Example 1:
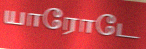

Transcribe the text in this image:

யாரோடே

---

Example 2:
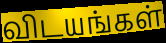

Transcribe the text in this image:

விடயங்கள்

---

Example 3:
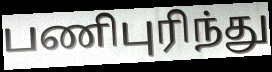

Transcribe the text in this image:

பணிபுரிந்து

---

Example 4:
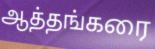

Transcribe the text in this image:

ஆத்தங்கரை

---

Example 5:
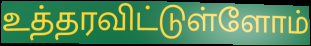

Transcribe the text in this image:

உத்தரவிட்டுள்ளோம்